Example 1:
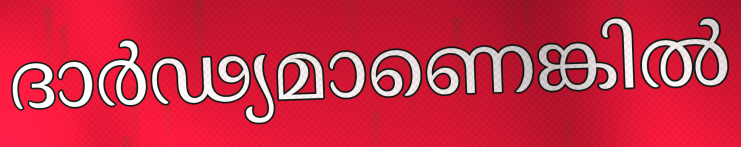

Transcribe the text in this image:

ദാർഢ്യമാണെങ്കിൽ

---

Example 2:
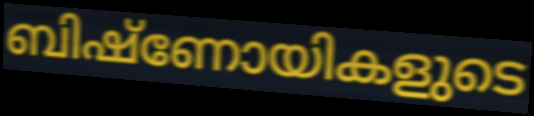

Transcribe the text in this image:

ബിഷ്ണോയികളുടെ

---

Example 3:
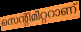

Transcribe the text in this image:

സെന്റിമീറ്ററാണ്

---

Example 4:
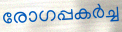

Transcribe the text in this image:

രോഗപ്പകർച്ച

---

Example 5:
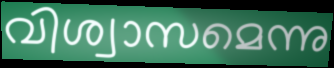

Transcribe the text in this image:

വിശ്വാസമെന്നു